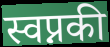
स्वप्नकी